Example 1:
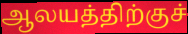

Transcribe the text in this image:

ஆலயத்திற்குச்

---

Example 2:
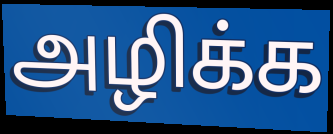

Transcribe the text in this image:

அழிக்க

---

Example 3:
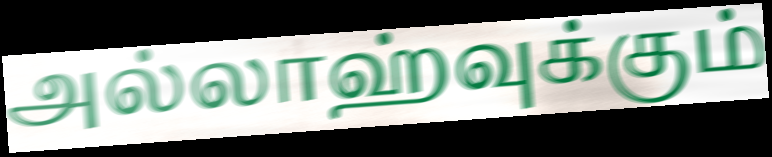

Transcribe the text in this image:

அல்லாஹ்வுக்கும்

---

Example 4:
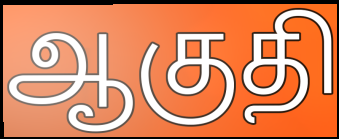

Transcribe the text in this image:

ஆகுதி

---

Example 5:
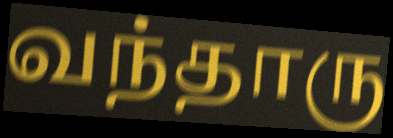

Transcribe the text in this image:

வந்தாரு